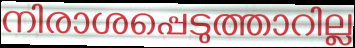
നിരാശപ്പെടുത്താറില്ല